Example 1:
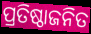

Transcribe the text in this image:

ପ୍ରତିଷ୍ଠାଜନିତ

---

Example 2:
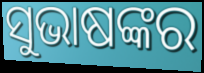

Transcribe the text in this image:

ସୁଭାଷଙ୍କର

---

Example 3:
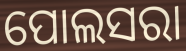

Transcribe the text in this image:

ପୋଲସରା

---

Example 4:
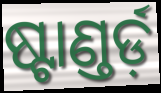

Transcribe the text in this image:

ଷ୍ଟାଣ୍ଡର୍ଡ଼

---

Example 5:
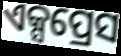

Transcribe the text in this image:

ଏକ୍ସପ୍ରେସ